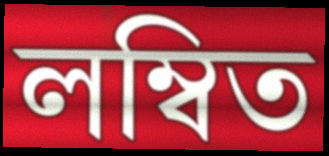
লম্বিত